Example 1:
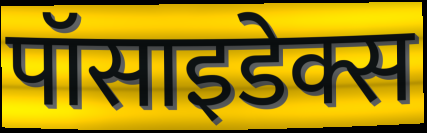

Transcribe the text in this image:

पॉसाइडेक्स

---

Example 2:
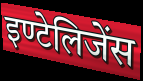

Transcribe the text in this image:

इण्टेलिजेंस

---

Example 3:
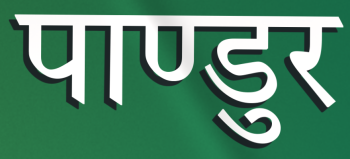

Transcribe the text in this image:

पाण्डुर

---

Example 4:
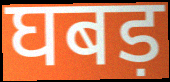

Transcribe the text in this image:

घबड़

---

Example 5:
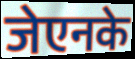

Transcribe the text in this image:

जेएनके